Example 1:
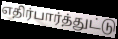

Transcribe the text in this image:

எதிர்பார்த்துட்டு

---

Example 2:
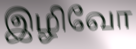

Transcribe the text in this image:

இழிவோ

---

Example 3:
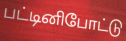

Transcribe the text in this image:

பட்டினிபோட்டு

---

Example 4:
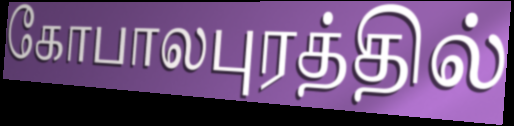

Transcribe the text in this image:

கோபாலபுரத்தில்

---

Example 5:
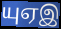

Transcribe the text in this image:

யுஏஇ